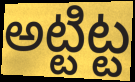
అట్టిట్ట